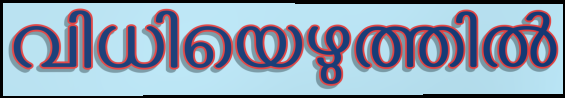
വിധിയെഴുത്തിൽ